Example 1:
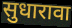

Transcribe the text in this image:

सुधारावा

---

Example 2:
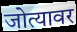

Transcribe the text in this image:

जोत्यावर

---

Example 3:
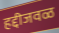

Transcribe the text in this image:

हद्दीजवळ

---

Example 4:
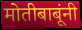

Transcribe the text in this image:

मोतीबाबूंनी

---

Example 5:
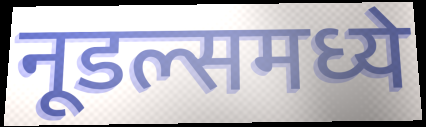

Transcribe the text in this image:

नूडल्समध्ये